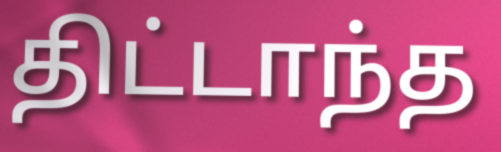
திட்டாந்த